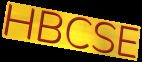
HBCSE